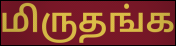
மிருதங்க